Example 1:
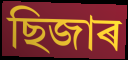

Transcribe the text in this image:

ছিজাৰ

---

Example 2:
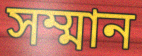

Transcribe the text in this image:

সম্মান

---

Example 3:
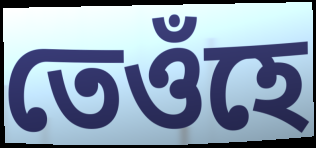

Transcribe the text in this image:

তেওঁহে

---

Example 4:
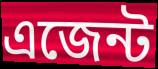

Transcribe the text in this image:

এজেন্ট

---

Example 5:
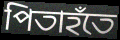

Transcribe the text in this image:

পিতাহঁতে